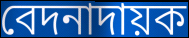
বেদনাদায়ক